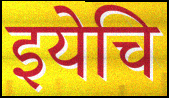
इयेचि